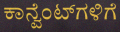
ಕಾನ್ವೆಂಟ್‌ಗಳಿಗೆ